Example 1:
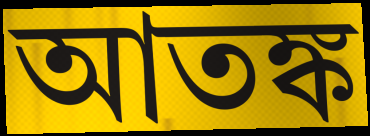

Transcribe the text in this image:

আতঙ্ক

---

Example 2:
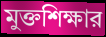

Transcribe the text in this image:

মুক্তশিক্ষার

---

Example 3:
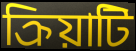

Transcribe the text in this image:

ক্রিয়াটি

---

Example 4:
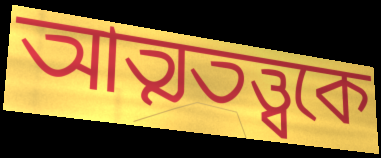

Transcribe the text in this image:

আত্মতত্ত্বকে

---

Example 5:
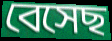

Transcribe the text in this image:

বেসেছ